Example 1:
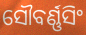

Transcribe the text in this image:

ସୌବର୍ଣ୍ଣସିଂ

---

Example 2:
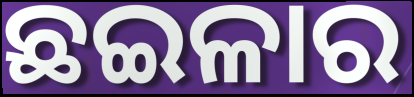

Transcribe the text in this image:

ଛଇଳାର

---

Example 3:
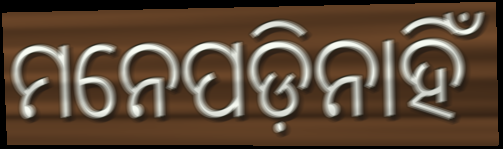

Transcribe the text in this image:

ମନେପଡ଼ିନାହିଁ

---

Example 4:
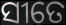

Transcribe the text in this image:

ସୀତେ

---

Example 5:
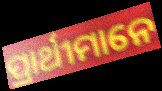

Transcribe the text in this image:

ପ୍ରାର୍ଥୀମାନେ